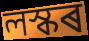
লস্কৰ